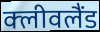
क्‍लीवलैंड